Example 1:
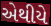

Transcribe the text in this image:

એથીયે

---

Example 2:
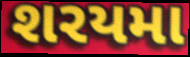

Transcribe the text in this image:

શરયમા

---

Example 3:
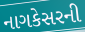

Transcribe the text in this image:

નાગકેસરની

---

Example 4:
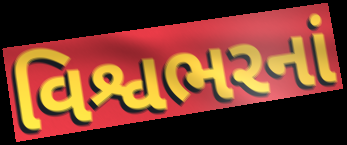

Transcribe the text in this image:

વિશ્વભરનાં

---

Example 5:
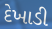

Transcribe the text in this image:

દેખાડી